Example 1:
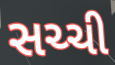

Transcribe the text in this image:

સચ્ચી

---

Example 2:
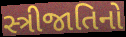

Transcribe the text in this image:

સ્ત્રીજાતિનો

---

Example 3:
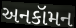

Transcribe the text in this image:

અનકૉમન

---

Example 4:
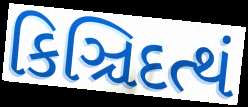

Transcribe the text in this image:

કિઞ્ચિદત્થં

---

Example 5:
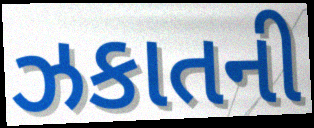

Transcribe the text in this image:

ઝકાતની